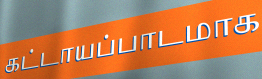
கட்டாயப்பாடமாக